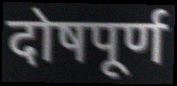
दोषपूर्ण